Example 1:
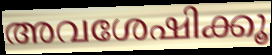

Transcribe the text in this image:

അവശേഷിക്കൂ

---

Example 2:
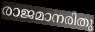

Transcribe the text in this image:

രാജമാനരിതു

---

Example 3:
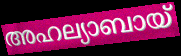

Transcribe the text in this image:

അഹല്യാബായ്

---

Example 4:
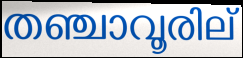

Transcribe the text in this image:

തഞ്ചാവൂരില്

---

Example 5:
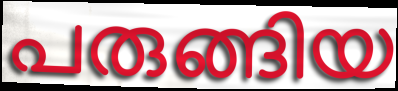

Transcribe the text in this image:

പരുങ്ങിയ